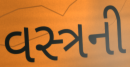
વસ્ત્રની